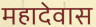
महादेवास